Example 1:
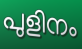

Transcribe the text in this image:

പുളിനം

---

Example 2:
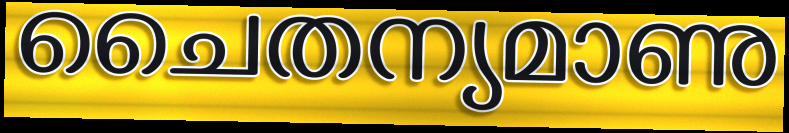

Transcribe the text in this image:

ചൈതന്യമാണു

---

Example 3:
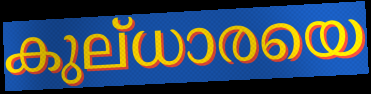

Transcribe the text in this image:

കുല്ധാരയെ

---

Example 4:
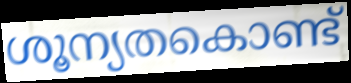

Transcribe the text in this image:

ശൂന്യതകൊണ്ട്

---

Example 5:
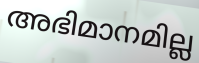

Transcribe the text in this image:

അഭിമാനമില്ല